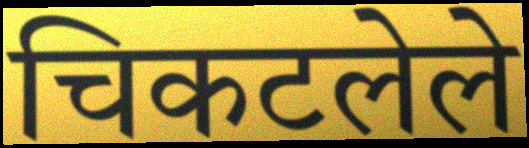
चिकटलेले